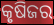
କୃଷିଜର